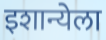
इशान्येला